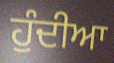
ਹੁੰਦੀਆ